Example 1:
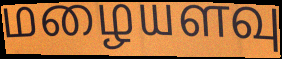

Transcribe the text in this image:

மழையளவு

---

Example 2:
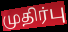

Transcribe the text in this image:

முதிர்பு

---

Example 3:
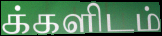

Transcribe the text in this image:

க்களிடம்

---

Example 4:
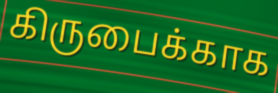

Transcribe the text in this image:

கிருபைக்காக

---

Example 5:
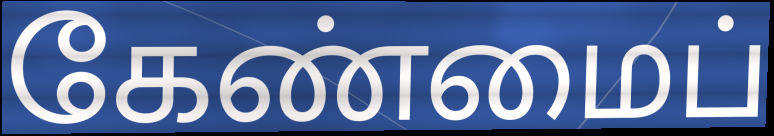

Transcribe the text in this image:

கேண்மைப்